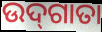
ଉଦ୍‌ଗାତା